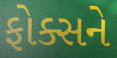
ફોક્સને